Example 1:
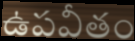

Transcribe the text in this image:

ఉపవీతం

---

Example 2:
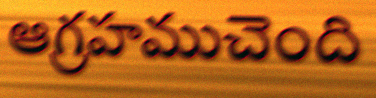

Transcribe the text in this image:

ఆగ్రహముచెంది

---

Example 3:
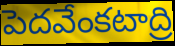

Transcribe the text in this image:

పెదవేంకటాద్రి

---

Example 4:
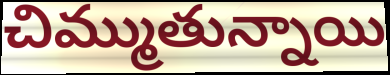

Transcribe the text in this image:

చిమ్ముతున్నాయి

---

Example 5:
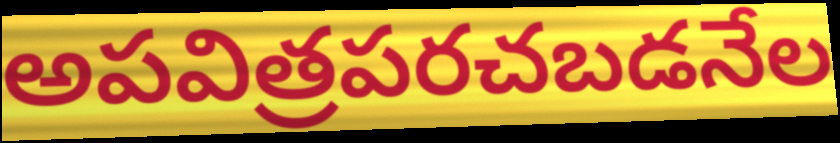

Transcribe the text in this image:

అపవిత్రపరచబడనేల